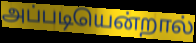
அப்படியென்றால்